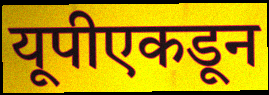
यूपीएकडून